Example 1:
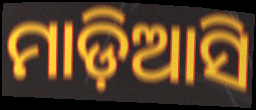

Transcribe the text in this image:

ମାଡ଼ିଆସି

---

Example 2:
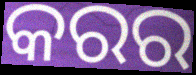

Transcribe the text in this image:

କରର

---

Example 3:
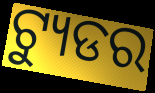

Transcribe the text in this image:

ଟ୍ୟୁଡର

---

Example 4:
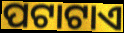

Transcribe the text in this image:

ପଟାଟାଏ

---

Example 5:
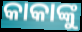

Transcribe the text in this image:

କାକାଙ୍କୁ